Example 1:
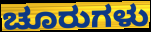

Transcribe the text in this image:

ಚೂರುಗಳು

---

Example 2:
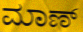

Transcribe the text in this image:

ಮಾಣ್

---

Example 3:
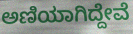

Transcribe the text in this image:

ಅಣಿಯಾಗಿದ್ದೇವೆ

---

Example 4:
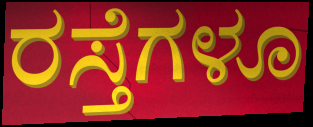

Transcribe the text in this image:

ರಸ್ತೆಗಳೂ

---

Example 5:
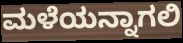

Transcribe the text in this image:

ಮಳೆಯನ್ನಾಗಲಿ